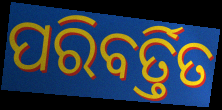
ପରିବର୍ତ୍ତିତ